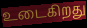
உடைகிறது